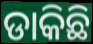
ଡାକିଛି